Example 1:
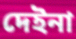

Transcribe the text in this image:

দেইনা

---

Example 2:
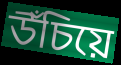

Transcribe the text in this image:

উঁচিয়ে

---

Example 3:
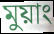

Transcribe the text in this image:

মুয়াং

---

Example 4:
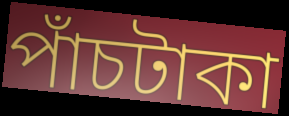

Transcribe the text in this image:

পাঁচটাকা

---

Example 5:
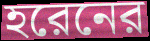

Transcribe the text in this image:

হরেনের